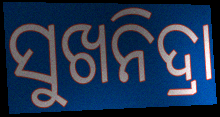
ସୁଖନିଦ୍ରା